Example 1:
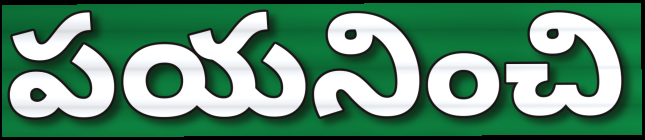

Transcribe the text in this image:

పయనించి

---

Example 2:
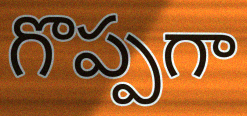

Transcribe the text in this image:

గొప్పగా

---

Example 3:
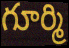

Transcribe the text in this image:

గూర్మి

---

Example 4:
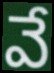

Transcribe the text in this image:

వే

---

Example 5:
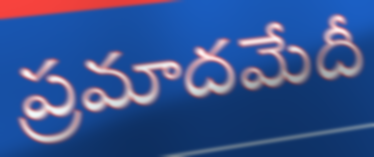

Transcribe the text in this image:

ప్రమాదమేదీ